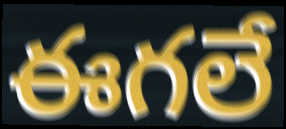
ఈగలే